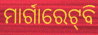
ମାର୍ଗାରେଟ୍‌ବି